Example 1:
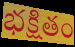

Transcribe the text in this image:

భక్షితం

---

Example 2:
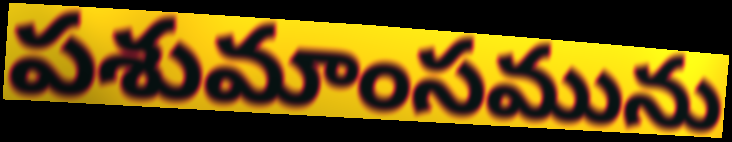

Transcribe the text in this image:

పశుమాంసమును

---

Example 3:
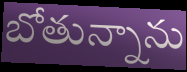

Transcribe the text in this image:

బోతున్నాను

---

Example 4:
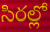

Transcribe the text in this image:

సిరల్లో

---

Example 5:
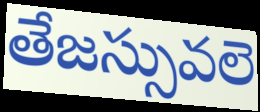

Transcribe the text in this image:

తేజస్సువలె